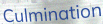
Culmination